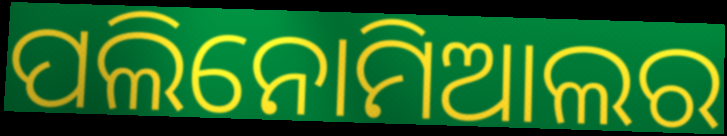
ପଲିନୋମିଆଲର